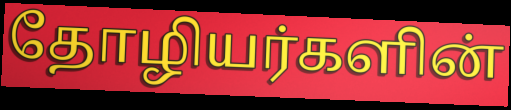
தோழியர்களின்